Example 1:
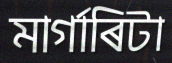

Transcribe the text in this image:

মাৰ্গাৰিটা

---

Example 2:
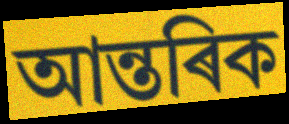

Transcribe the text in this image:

আন্তৰিক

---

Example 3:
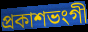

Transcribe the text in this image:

প্ৰকাশভংগী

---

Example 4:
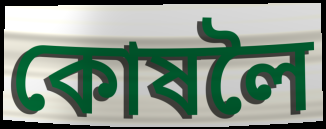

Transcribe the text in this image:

কোষলৈ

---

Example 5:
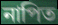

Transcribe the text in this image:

নাপিত